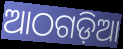
ଆଠଗଡ଼ିଆ